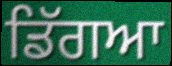
ਡਿੱਗਆ